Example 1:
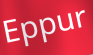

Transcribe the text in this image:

Eppur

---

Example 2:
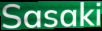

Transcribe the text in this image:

Sasaki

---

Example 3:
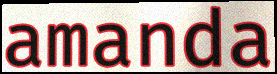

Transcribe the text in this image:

amanda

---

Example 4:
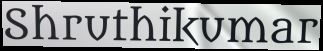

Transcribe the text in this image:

Shruthikumar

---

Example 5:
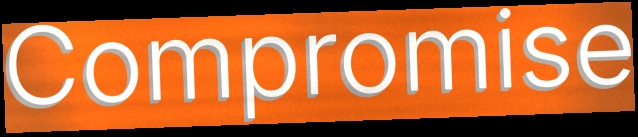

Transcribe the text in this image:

Compromise